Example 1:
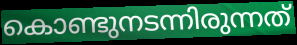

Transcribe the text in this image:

കൊണ്ടുനടന്നിരുന്നത്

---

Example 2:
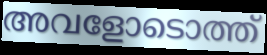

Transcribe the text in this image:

അവളോടൊത്ത്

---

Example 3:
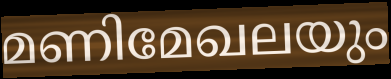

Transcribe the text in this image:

മണിമേഖലയും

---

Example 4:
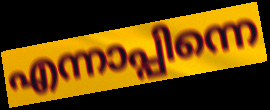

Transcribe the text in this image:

എന്നാപ്പിന്നെ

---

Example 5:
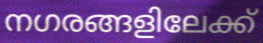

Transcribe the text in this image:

നഗരങ്ങളിലേക്ക്